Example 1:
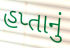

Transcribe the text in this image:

હપ્તાનું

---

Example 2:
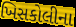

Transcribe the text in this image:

ખિસકોલીના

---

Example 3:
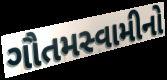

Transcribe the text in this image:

ગૌતમસ્વામીનો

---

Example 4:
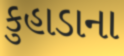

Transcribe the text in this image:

કુહાડાના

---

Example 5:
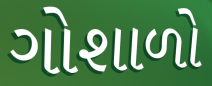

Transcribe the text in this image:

ગોશાળો